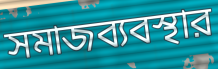
সমাজব্যবস্থার